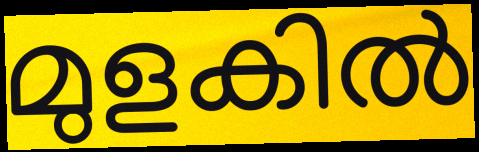
മുളകിൽ